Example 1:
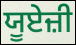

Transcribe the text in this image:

ਯੂਏਜ਼ੀ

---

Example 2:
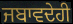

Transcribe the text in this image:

ਜਬਾਵਦੇਹੀ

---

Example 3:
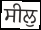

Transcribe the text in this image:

ਸੀਲੁ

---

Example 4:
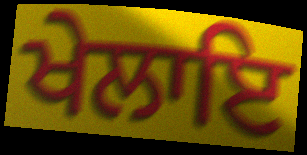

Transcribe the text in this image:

ਖੇਲਾਇ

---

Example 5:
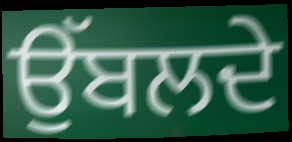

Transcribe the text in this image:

ਉੱਬਲਦੇ